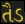
તૈડ